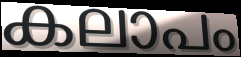
കലാപം